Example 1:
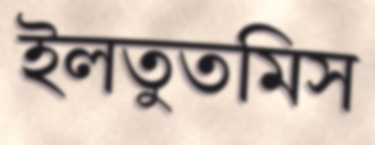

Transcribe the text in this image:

ইলতুতমিস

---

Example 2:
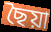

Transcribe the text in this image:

ছৈয়া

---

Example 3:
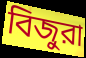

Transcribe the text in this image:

বিজুরা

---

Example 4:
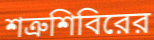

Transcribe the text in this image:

শত্রুশিবিরের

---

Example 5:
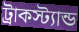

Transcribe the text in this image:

ট্রাকস্ট্যান্ড